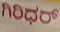
ಗಿರಿಧರ್